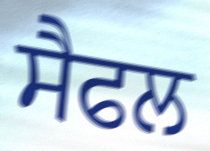
ਸੈਫਲ